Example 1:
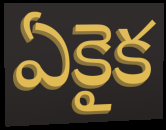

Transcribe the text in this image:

ఏకైక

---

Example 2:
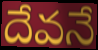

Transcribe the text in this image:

దేవనే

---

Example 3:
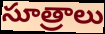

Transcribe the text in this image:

సూత్రాలు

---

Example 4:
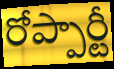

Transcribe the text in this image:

రోప్పార్టీ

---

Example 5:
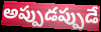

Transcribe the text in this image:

అప్పుడప్పుడే